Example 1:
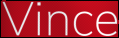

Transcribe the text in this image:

Vince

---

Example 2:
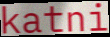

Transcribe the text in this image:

katni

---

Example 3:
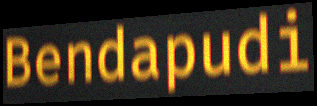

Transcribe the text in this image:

Bendapudi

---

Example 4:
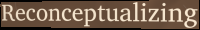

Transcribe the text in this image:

Reconceptualizing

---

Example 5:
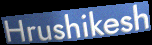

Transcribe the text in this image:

Hrushikesh